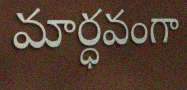
మార్ధవంగా